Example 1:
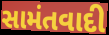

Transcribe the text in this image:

સામંતવાદી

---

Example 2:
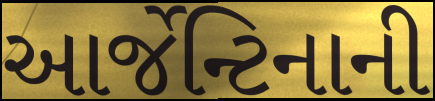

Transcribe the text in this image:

આર્જેન્ટિનાની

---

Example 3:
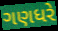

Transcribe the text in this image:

ગણધરે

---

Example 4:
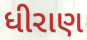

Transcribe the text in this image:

ધીરાણ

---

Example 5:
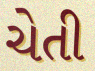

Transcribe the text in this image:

ચેતી